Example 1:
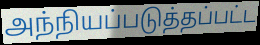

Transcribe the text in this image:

அந்நியப்படுத்தப்பட்ட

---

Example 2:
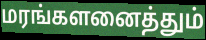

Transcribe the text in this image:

மரங்களனைத்தும்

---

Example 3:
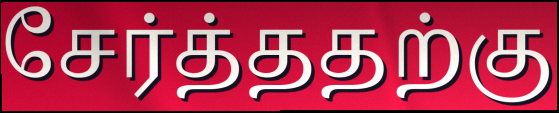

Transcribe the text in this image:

சேர்த்ததற்கு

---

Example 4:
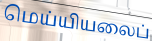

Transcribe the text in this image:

மெய்யியலைப்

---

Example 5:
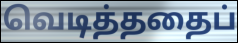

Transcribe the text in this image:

வெடித்ததைப்